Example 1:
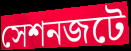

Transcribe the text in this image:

সেশনজটে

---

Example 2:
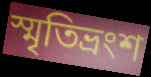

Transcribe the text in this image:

স্মৃতিভ্রংশ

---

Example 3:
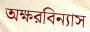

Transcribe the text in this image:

অক্ষরবিন্যাস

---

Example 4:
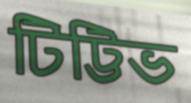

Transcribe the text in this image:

টিট্টিভ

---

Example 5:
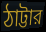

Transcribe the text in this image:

ঠাট্টার